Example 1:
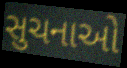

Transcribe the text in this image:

સુચનાઓ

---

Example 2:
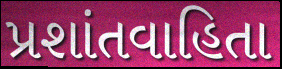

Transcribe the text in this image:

પ્રશાંતવાહિતા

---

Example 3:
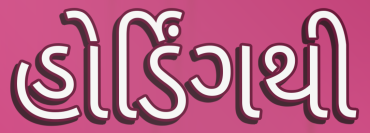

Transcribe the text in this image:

હોર્ડિંગથી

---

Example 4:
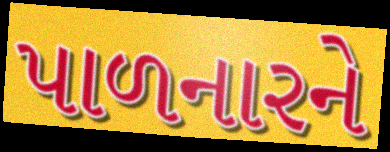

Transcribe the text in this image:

પાળનારને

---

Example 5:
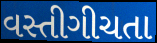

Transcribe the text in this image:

વસ્તીગીચતા